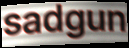
sadgun